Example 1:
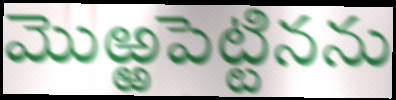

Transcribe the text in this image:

మొఱ్ఱపెట్టినను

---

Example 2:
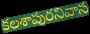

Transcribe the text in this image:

కలశాపురనివాస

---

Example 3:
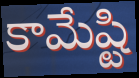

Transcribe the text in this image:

కామేష్టి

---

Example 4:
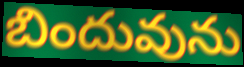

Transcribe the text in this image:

బిందువును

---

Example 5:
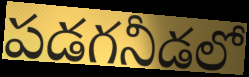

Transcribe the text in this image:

పడగనీడలో